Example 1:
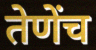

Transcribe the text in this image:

तेणेंच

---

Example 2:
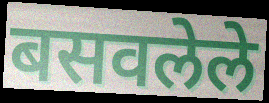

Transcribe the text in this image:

बसवलेले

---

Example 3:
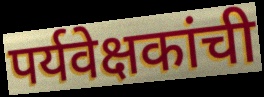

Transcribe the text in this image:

पर्यवेक्षकांची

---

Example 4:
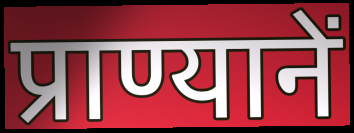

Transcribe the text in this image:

प्राण्यानें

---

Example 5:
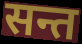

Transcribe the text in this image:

सन्त